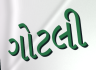
ગોટલી